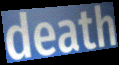
death